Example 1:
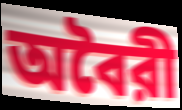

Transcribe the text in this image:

অবৈরী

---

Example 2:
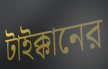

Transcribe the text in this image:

টাইক্কানের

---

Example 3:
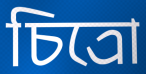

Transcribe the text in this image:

চিত্রো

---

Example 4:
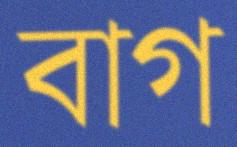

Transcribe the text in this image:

বাগ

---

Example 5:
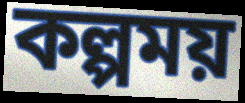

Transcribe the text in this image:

কল্পময়